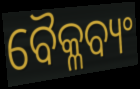
ବୈକ୍ଳବ୍ୟଂ